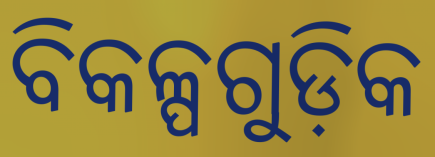
ବିକଳ୍ପଗୁଡ଼ିକ